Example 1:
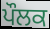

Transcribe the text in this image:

ਪੌਲਕ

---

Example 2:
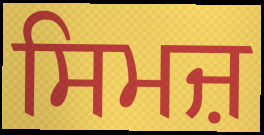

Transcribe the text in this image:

ਸਿਮਜ਼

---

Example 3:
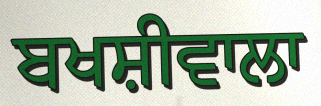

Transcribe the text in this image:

ਬਖਸ਼ੀਵਾਲਾ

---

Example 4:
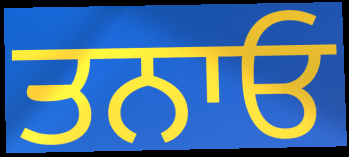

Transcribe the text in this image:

ਤਨਾਓ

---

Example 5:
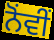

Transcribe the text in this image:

ਨੋਂਵੀਂ